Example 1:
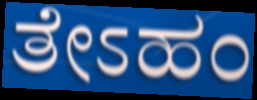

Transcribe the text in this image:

ತೇಽಹಂ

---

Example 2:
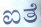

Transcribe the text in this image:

ಐತೆ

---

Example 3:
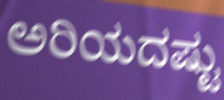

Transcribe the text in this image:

ಅರಿಯದಷ್ಟು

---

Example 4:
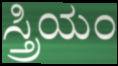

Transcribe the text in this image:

ಸ್ತ್ರಿಯಂ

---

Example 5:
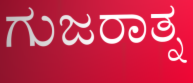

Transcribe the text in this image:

ಗುಜರಾತ್ನ